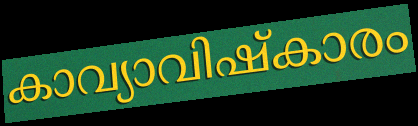
കാവ്യാവിഷ്കാരം